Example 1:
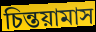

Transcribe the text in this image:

চিন্তয়ামাস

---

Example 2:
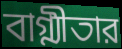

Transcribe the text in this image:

বাগ্মীতার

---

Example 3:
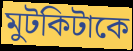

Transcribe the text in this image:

মুটকিটাকে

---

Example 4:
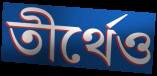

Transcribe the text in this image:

তীর্থেও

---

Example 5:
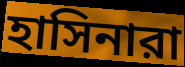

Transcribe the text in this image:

হাসিনারা